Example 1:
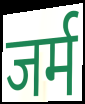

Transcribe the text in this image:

जर्म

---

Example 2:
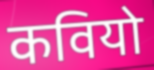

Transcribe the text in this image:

कवियो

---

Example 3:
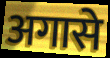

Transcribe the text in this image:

अगासे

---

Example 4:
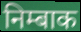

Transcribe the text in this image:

निम्बाक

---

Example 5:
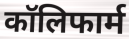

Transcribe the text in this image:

कॉलिफार्म